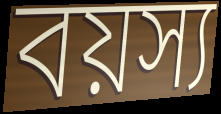
বয়স্য